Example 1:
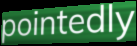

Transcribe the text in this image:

pointedly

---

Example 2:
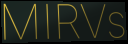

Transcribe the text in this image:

MIRVs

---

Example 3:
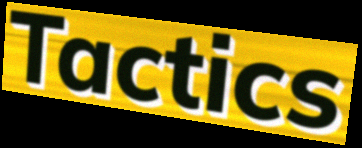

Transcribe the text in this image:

Tactics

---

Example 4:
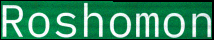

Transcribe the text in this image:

Roshomon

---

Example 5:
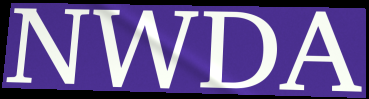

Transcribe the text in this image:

NWDA